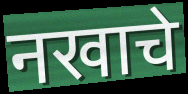
नखाचे